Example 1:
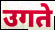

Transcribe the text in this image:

उगते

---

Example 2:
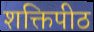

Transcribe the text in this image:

शक्तिपीठ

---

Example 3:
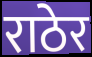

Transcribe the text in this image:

राठेर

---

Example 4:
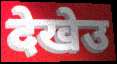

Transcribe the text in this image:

देखेउ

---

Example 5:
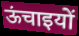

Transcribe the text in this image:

ऊंचाइयों